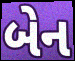
બેન